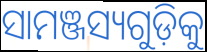
ସାମଞ୍ଜସ୍ୟଗୁଡ଼ିକୁ